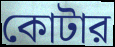
কোটার